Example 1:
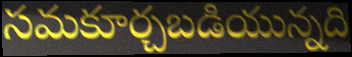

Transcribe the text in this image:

సమకూర్చబడియున్నది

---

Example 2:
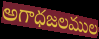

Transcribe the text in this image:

అగాధజలముల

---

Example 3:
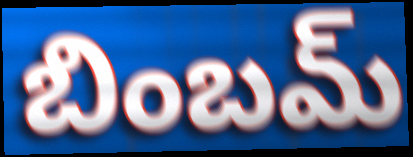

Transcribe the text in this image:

బింబమ్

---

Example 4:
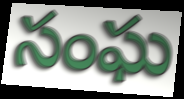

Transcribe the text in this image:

సంఘ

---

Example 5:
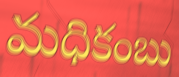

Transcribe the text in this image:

మధికంబు